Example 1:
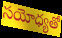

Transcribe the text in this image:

సయోధ్యతో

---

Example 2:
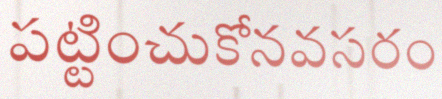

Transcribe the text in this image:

పట్టించుకోనవసరం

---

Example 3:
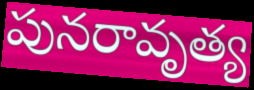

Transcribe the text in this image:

పునరావృత్య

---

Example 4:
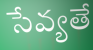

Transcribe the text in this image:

సేవ్యతే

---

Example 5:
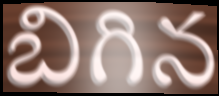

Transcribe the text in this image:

బిగిన